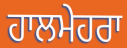
ਹਾਲਮੇਹਰਾ